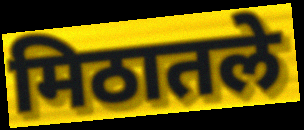
मिठातले